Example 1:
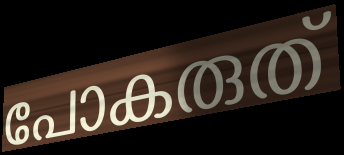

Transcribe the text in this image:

പോകരുത്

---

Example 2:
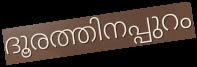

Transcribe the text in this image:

ദൂരത്തിനപ്പുറം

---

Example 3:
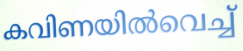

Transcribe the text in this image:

കവിണയിൽവെച്ച്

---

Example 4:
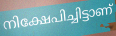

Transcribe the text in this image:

നിക്ഷേപിച്ചിട്ടാണ്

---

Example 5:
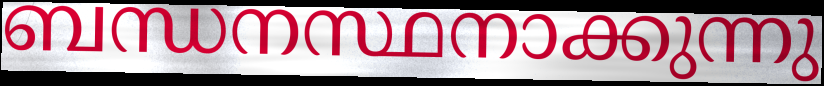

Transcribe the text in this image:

ബന്ധനസ്ഥനാക്കുന്നു